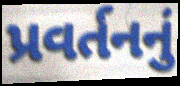
પ્રવર્તનનું